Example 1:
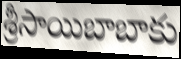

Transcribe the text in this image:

శ్రీసాయిబాబాకు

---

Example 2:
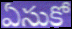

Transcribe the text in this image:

ఏసుకో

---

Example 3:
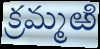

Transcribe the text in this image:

క్రమ్మఱి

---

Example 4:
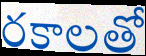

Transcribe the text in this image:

రకాలతో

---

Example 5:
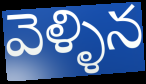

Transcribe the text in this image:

వెళ్ళిన